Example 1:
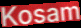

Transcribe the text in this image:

Kosam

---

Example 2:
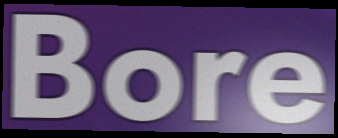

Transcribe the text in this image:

Bore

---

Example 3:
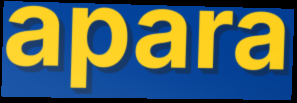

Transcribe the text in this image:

apara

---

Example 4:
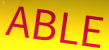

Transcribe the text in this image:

ABLE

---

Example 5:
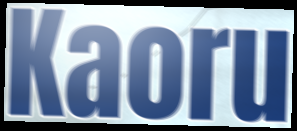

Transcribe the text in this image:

Kaoru